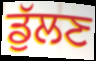
ਡੁੱਲਣ